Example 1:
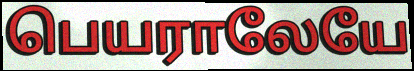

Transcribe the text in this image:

பெயராலேயே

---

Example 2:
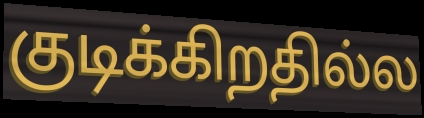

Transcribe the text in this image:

குடிக்கிறதில்ல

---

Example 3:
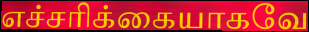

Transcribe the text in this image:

எச்சரிக்கையாகவே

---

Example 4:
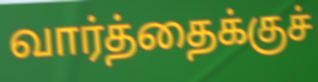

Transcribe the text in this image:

வார்த்தைக்குச்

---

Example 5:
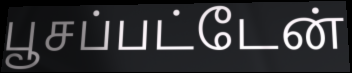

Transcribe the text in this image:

பூசப்பட்டேன்